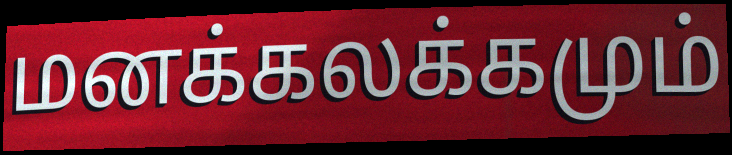
மனக்கலக்கமும்